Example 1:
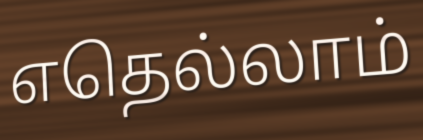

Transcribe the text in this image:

எதெல்லாம்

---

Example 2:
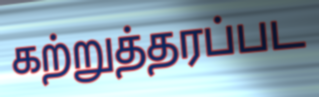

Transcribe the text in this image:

கற்றுத்தரப்பட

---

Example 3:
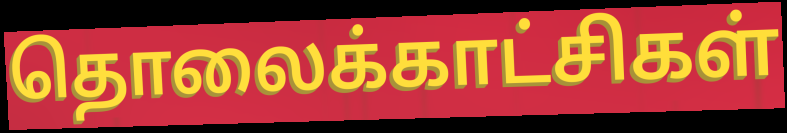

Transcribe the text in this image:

தொலைக்காட்சிகள்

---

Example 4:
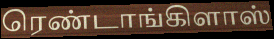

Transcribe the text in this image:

ரெண்டாங்கிளாஸ்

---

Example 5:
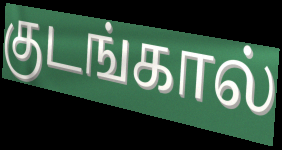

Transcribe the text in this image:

குடங்கால்